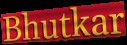
Bhutkar